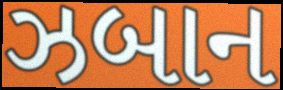
ઝબાન